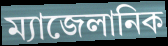
ম্যাজেলানিক